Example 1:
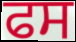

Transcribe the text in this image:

ਫਸ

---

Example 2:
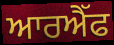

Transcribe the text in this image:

ਆਰਐੱਫ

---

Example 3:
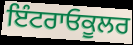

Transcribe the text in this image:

ਇੰਟਰਾਓਕੂਲਰ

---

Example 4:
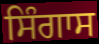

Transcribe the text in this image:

ਸਿੰਗਾਸ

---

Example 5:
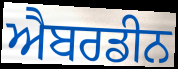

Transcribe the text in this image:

ਐਬਰਡੀਨ